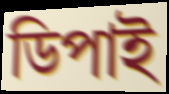
ডিপাই